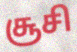
சூசி